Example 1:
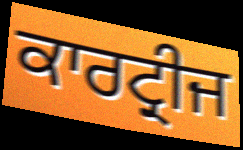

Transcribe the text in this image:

ਕਾਰਟ੍ਰੀਜ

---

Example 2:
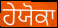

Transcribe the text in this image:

ਹੇਯੋਕਾ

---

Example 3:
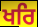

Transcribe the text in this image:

ਖਰਿ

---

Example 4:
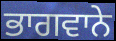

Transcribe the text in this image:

ਭਾਗਵਾਨੇ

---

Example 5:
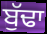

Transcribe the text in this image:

ਬੁੱਢਾ